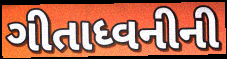
ગીતાધ્વનીની